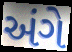
અંગે